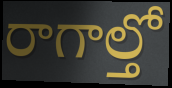
రాగాల్తో